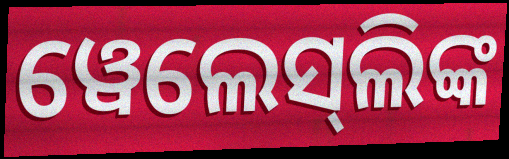
ୱେଲେସ୍‌ଲିଙ୍କ